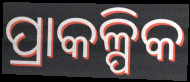
ପ୍ରାକଳ୍ପିକ